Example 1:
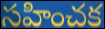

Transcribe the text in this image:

సహించక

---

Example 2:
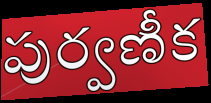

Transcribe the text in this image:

పుర్వణీక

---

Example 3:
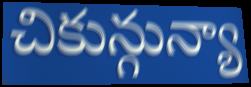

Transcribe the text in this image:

చికున్గున్యా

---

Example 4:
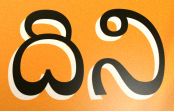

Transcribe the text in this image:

దిని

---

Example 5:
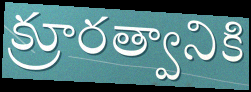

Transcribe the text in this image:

క్రూరత్వానికి